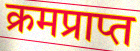
क्रमप्राप्त